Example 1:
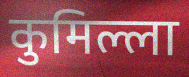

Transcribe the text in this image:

कुमिल्ला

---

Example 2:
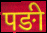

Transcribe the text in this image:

पङी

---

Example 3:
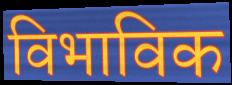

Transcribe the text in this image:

विभाविक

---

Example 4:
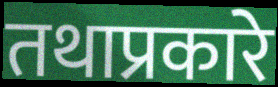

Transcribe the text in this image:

तथाप्रकारे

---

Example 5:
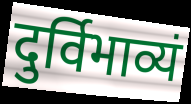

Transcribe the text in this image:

दुर्विभाव्यं